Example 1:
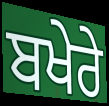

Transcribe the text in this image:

ਬਖੇਰੇ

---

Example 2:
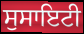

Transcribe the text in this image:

ਸੁਸਾਇਟੀ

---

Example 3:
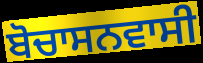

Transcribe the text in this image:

ਬੋਚਾਸਨਵਾਸੀ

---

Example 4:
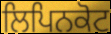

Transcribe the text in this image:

ਲਿਪਿਨਕੋਟ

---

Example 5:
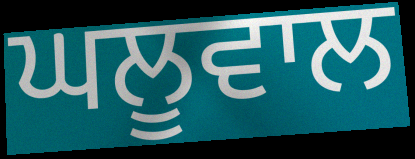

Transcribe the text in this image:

ਘਲੂਵਾਲ